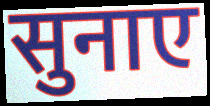
सुनाए